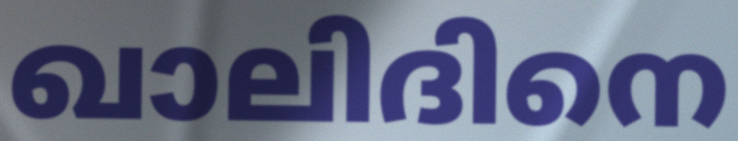
ഖാലിദിനെ